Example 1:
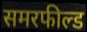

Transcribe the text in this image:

समरफील्ड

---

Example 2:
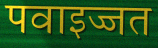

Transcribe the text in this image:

पवाइज्जत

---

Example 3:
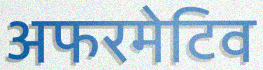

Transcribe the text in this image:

अफरमेटिव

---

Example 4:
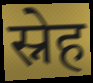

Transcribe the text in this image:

स्नेह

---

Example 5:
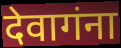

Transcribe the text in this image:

देवागंना